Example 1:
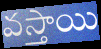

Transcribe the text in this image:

వస్తాయి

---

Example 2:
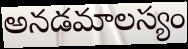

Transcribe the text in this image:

అనడమాలస్యం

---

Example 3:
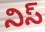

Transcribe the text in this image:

నిస్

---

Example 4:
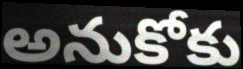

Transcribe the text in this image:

అనుకోకు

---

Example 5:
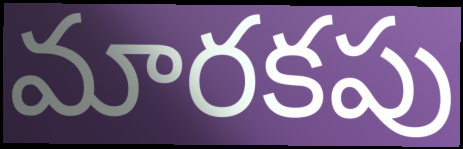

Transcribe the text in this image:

మారకపు